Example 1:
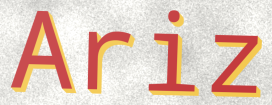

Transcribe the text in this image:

Ariz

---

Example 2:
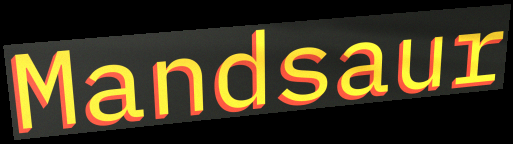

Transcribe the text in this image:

Mandsaur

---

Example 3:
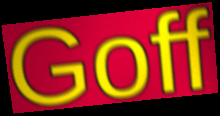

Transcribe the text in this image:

Goff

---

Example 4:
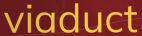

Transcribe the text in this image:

viaduct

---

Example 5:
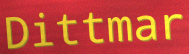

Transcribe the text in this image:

Dittmar